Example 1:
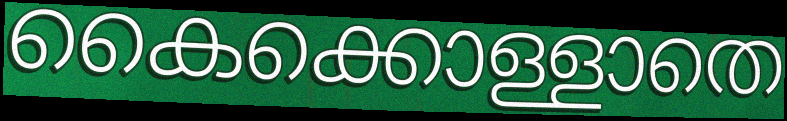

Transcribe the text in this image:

കൈക്കൊള്ളാതെ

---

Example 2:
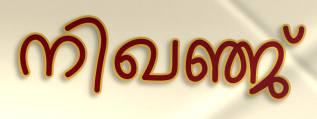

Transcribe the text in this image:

നിഖഞ്ജ്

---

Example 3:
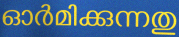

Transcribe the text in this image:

ഓർമിക്കുന്നതു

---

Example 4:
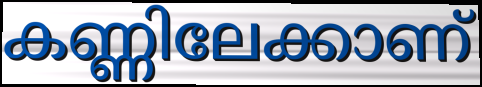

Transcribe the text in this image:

കണ്ണിലേക്കാണ്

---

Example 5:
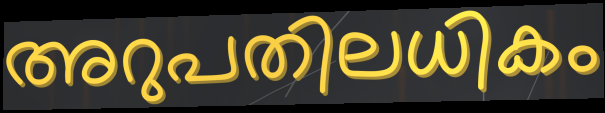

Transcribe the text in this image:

അറുപതിലധികം